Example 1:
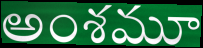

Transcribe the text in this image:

అంశమూ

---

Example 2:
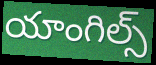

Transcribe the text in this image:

యాంగిల్స్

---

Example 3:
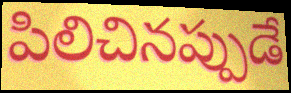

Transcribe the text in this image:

పిలిచినప్పుడే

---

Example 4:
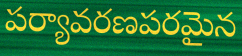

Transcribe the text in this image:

పర్యావరణపరమైన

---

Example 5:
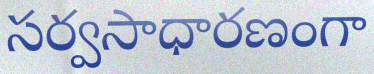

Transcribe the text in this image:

సర్వసాధారణంగా